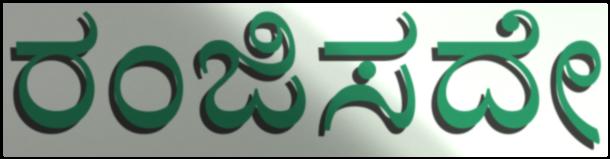
ರಂಜಿಸದೇ